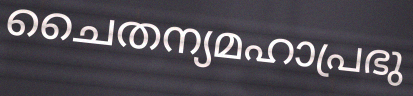
ചൈതന്യമഹാപ്രഭു